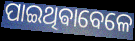
ପାଇଥିଵାବେଳେ